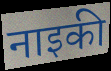
नाइकी